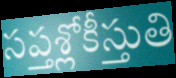
సప్తశ్లోకీస్తుతి